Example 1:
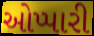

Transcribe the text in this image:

ઓપ્પારી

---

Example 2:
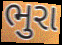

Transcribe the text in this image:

ભુરા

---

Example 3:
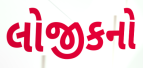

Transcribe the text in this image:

લોજીકનો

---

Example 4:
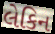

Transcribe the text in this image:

લેકિન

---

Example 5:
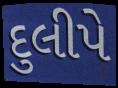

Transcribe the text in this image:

દુલીપે